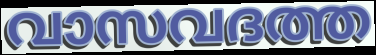
വാസവദത്ത